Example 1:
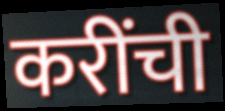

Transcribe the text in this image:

करींची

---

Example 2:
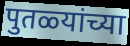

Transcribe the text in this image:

पुतळ्यांच्या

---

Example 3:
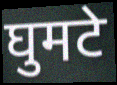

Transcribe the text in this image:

घुमटे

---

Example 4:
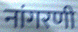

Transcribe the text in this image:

नांगरणी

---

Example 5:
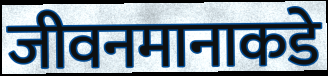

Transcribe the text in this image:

जीवनमानाकडे